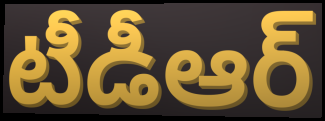
టీడీఆర్